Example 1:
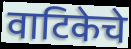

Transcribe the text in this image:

वाटिकेचे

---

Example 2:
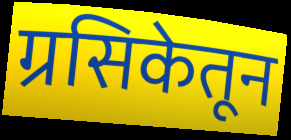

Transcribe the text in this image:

ग्रसिकेतून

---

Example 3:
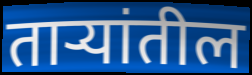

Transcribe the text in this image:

ताऱ्यांतील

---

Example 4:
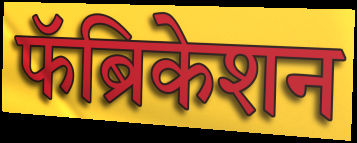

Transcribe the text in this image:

फॅब्रिकेशन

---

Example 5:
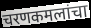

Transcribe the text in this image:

चरणकमलांचा